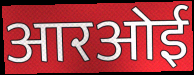
आरओई